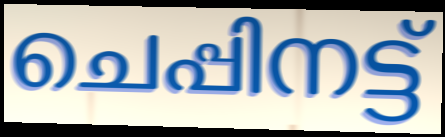
ചെപ്പിനട്ട്